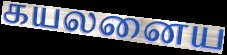
கயலனைய